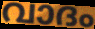
വാദം